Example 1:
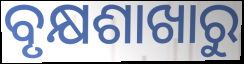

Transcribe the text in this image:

ବୃକ୍ଷଶାଖାରୁ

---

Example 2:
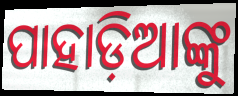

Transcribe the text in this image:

ପାହାଡ଼ିଆଙ୍କୁ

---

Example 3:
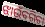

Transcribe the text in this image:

ଝାଉଁବଗିଚା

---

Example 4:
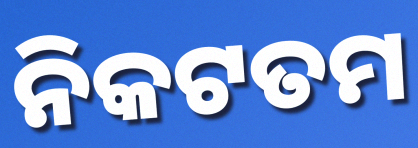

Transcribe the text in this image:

ନିକଟତମ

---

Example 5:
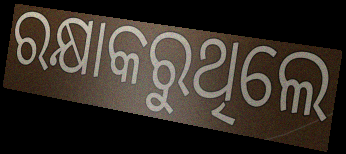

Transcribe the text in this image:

ରକ୍ଷାକରୁଥିଲେ